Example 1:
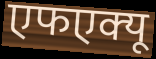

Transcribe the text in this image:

एफएक्यू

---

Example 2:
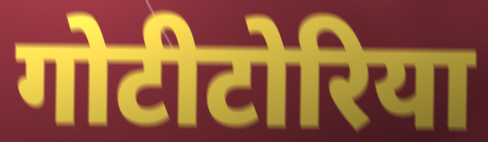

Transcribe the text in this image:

गोटीटोरिया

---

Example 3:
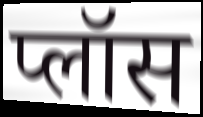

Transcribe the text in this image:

प्लॉस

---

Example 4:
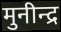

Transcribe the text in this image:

मुनीन्द्र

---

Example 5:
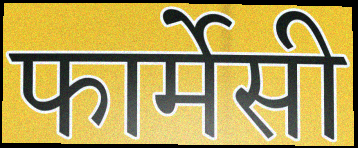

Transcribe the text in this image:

फार्मेसी